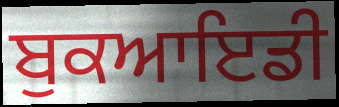
ਬੁਕਆਇਡੀ